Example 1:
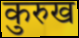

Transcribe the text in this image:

कुरुख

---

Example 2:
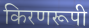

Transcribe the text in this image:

किरणरूपी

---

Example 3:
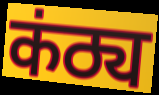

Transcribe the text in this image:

कंठ्य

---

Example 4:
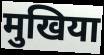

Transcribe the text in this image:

मुखिया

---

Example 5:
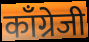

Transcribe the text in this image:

काँग्रेजी